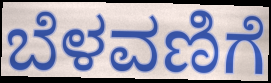
ಬೆಳವಣಿಗೆ